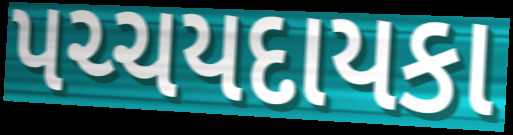
પચ્ચયદાયકા